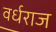
वर्धराज